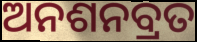
ଅନଶନବ୍ରତ